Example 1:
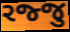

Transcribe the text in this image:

રજ્જુ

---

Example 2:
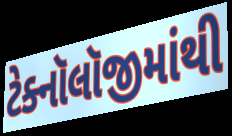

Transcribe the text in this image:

ટેક્નૉલૉજીમાંથી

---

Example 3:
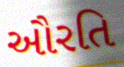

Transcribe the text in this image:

ઔરતિ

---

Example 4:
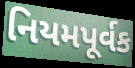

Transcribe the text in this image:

નિયમપૂર્વક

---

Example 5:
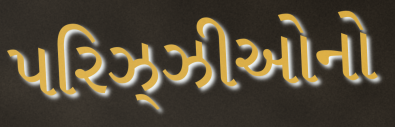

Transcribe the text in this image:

પરિઝ્ઝીઓનો